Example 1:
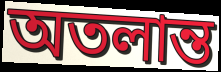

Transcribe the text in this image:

অতলান্ত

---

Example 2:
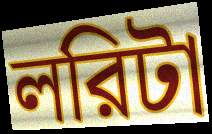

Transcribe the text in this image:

লরিটা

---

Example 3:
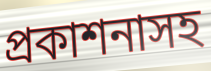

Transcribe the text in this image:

প্রকাশনাসহ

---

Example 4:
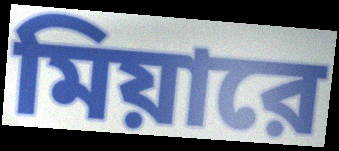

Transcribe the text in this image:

মিয়ারে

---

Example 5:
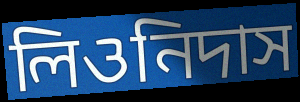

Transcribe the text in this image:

লিওনিদাস